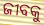
ଜୀବକୁ